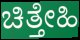
ಚಿತ್ತೇಹಿ